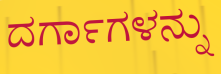
ದರ್ಗಾಗಳನ್ನು